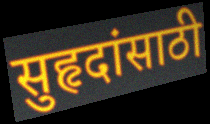
सुहृदांसाठी